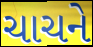
ચાચને